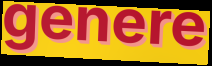
genere